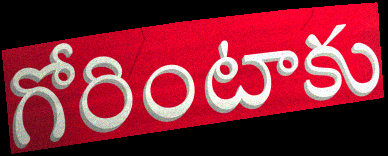
గోరింటాకు